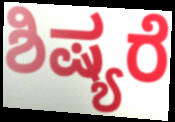
ಶಿಷ್ಯರೆ